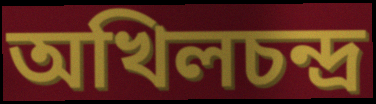
অখিলচন্দ্র